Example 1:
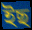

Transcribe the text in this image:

ইছ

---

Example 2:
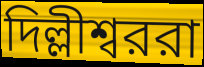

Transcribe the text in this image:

দিল্লীশ্বররা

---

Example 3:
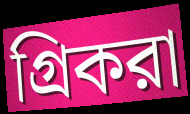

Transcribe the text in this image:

গ্রিকরা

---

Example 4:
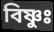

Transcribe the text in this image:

বিষ্ণুঃ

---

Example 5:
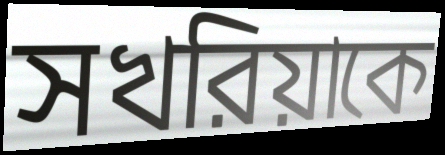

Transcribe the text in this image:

সখরিয়াকে